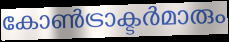
കോൺട്രാക്ടർമാരും